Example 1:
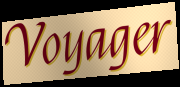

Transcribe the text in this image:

Voyager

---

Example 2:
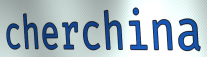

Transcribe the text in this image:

cherchina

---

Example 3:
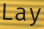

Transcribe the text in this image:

Lay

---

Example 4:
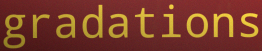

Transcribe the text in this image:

gradations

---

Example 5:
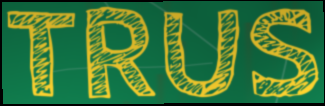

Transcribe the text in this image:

TRUS